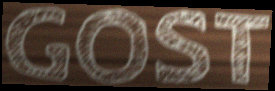
GOST